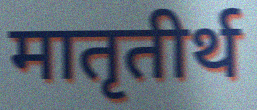
मातृतीर्थ